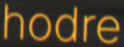
hodre